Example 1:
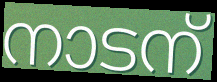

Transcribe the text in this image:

നാടന്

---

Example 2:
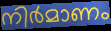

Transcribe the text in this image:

നിർമാണം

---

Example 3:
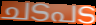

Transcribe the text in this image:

ചടപട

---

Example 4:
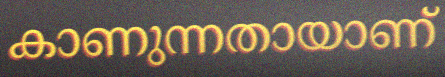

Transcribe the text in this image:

കാണുന്നതായാണ്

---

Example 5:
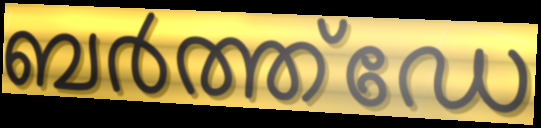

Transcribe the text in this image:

ബർത്ത്ഡേ